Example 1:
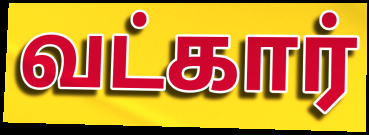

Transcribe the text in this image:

வட்கார்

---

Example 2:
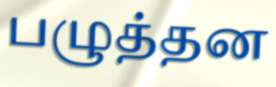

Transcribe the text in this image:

பழுத்தன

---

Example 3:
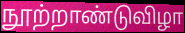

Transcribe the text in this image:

நூற்றாண்டுவிழா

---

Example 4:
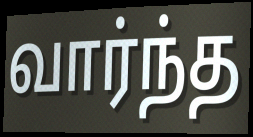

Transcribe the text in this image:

வார்ந்த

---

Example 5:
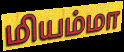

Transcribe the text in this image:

மியம்மா